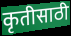
कृतीसाठी